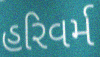
હરિવર્મ